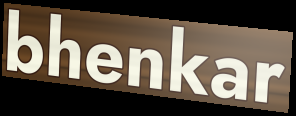
bhenkar